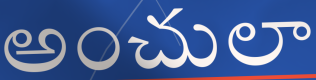
అంచులా